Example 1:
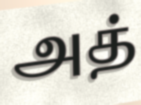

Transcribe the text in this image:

அத்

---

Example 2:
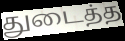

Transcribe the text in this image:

துடைத்த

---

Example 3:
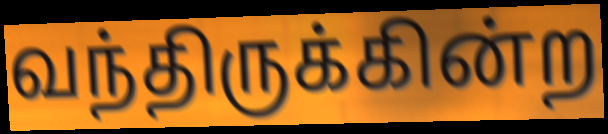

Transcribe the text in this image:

வந்திருக்கின்ற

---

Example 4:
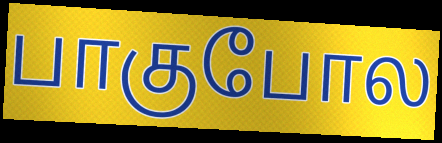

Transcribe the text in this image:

பாகுபோல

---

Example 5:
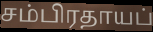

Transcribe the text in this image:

சம்பிரதாயப்